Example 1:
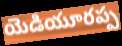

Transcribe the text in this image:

యెడియూరప్ప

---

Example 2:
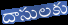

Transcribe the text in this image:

దాసులకు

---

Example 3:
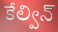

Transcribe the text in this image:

కేల్విన్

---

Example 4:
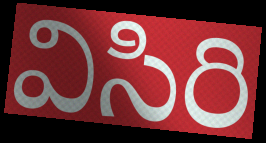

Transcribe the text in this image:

విసిరి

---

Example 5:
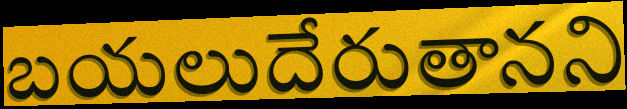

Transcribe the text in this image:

బయలుదేరుతానని